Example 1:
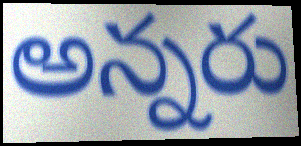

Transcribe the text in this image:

అన్నరు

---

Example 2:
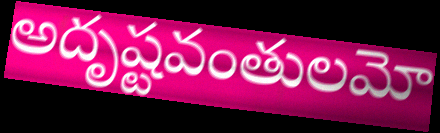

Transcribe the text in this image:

అదృష్టవంతులమో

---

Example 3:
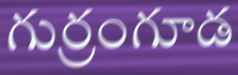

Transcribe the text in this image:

గుర్రంగూడ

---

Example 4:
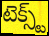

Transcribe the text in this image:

టెక్స్ట్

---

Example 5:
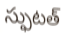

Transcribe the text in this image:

స్ఫుటత్